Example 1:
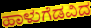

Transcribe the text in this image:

ಹಾಳುಗೆಡವಿದ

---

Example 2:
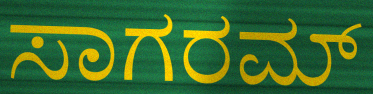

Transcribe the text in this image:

ಸಾಗರಮ್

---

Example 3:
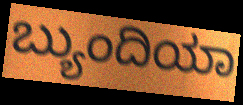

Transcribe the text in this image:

ಬ್ಯುಂದಿಯಾ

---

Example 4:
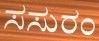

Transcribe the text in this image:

ಸಸುರಂ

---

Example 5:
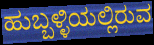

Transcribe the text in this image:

ಹುಬ್ಬಳ್ಳಿಯಲ್ಲಿರುವ